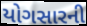
યોગસારની